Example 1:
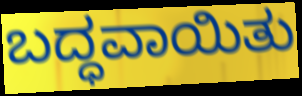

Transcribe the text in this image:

ಬದ್ಧವಾಯಿತು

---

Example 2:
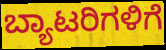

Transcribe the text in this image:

ಬ್ಯಾಟರಿಗಳಿಗೆ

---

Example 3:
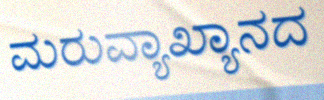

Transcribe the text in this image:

ಮರುವ್ಯಾಖ್ಯಾನದ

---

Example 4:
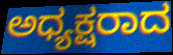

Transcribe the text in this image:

ಅಧ್ಯಕ್ಷರಾದ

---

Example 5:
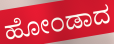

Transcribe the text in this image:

ಹೋಂಡಾದ